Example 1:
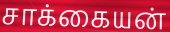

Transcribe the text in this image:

சாக்கையன்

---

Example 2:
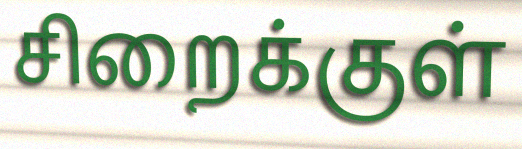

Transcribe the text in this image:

சிறைக்குள்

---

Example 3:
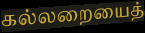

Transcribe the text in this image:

கல்லறையைத்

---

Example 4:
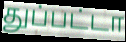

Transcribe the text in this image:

துப்பட்டா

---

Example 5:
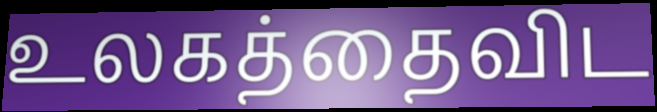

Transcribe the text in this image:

உலகத்தைவிட